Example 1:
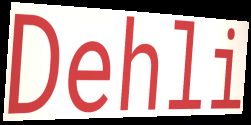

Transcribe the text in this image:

Dehli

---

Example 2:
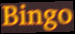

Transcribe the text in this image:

Bingo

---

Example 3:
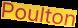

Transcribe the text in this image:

Poulton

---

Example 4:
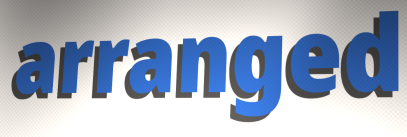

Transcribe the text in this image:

arranged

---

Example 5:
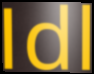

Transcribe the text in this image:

Idl